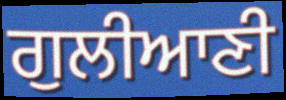
ਗੁਲੀਆਣੀ